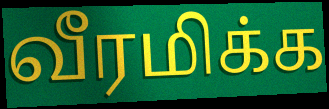
வீரமிக்க